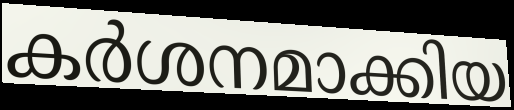
കർശനമാക്കിയ